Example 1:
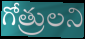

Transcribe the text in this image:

గోత్రులని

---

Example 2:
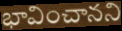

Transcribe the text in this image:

భావించానని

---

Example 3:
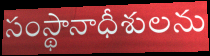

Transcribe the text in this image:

సంస్థానాధీశులను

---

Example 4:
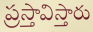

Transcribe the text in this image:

ప్రస్తావిస్తారు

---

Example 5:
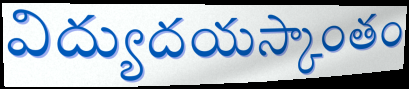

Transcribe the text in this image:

విద్యుదయస్కాంతం